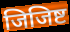
जिजिष्ट